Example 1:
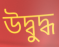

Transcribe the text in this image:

উদ্বুদ্ধ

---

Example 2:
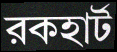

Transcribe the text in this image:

রকহার্ট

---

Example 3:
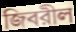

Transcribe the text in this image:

জিবরীল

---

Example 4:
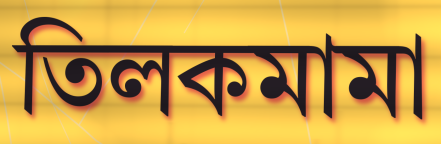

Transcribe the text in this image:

তিলকমামা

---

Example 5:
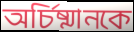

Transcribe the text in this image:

অর্চিষ্মানকে